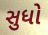
સુધો